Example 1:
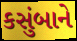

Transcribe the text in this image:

કસુંબાને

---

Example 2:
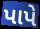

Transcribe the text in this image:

પાપે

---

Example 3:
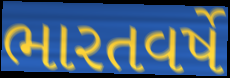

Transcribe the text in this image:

ભારતવર્ષે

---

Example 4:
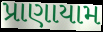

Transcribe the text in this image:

પ્રાણાયામ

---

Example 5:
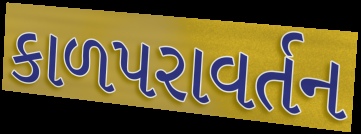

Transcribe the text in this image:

કાળપરાવર્તન